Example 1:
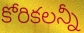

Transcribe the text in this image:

కోరికలన్నీ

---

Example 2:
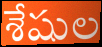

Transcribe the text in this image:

శేషుల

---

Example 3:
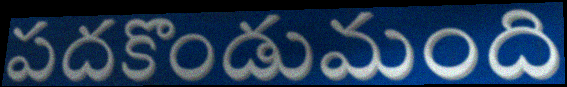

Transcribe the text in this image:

పదకొండుమంది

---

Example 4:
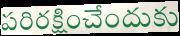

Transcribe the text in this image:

పరిరక్షించేందుకు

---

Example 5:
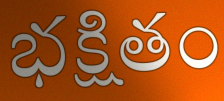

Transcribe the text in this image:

భక్షితం